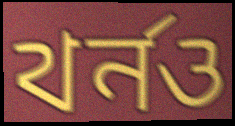
থর্নও